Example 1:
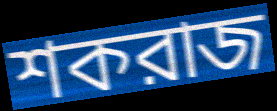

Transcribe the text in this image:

শকরাজ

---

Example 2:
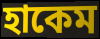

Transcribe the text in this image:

হাকেম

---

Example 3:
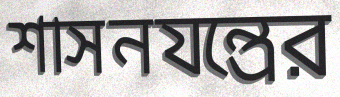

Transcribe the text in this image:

শাসনযন্ত্রের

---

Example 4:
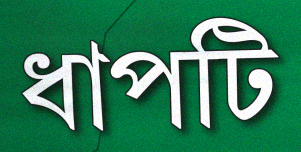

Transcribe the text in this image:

ধাপটি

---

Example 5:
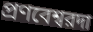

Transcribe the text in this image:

প্রণবেশ্বরদা